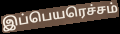
இப்பெயரெச்சம்